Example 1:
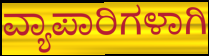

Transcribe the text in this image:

ವ್ಯಾಪಾರಿಗಳಾಗಿ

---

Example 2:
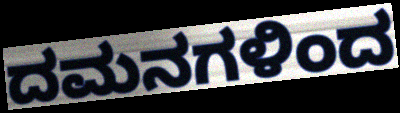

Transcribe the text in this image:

ದಮನಗಳಿಂದ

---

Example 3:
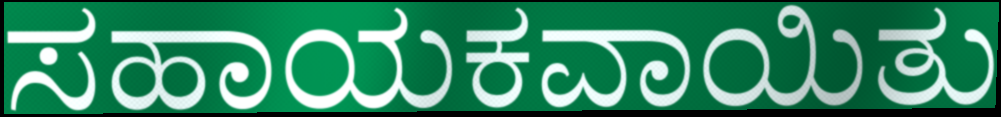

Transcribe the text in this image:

ಸಹಾಯಕವಾಯಿತು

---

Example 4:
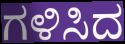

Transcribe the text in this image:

ಗಳಿಸಿದ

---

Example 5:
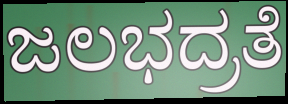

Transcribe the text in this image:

ಜಲಭದ್ರತೆ